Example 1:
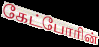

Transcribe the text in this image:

கேட்போரின்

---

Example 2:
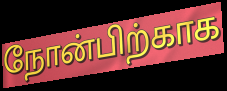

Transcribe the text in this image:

நோன்பிற்காக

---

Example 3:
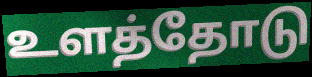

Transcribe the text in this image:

உளத்தோடு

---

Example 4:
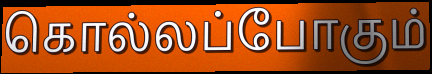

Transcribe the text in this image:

கொல்லப்போகும்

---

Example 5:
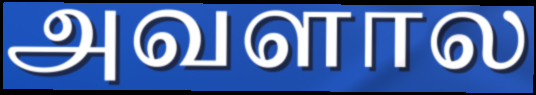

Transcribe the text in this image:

அவளால